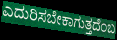
ಎದುರಿಸಬೇಕಾಗುತ್ತದೆಂಬ